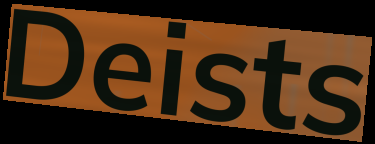
Deists